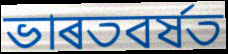
ভাৰতবৰ্ষত